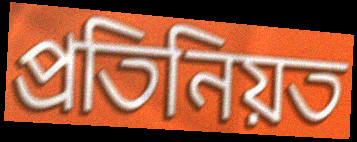
প্ৰতিনিয়ত